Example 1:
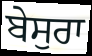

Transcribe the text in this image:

ਬੇਸੁਰਾ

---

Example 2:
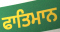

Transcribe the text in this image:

ਫਾਤਿਮਾਨ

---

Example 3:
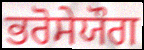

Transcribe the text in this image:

ਭਰੋਸੇਯੌਗ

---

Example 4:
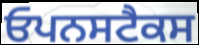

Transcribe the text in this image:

ਓਪਨਸਟੈਕਸ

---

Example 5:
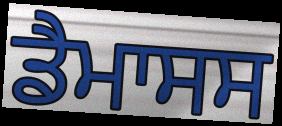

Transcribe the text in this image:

ਡੈਮਾਸਸ